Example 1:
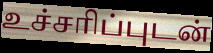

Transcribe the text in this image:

உச்சரிப்புடன்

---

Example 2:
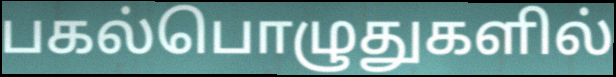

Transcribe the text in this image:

பகல்பொழுதுகளில்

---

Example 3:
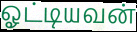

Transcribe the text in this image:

ஓட்டியவன்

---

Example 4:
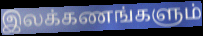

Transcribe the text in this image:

இலக்கணங்களும்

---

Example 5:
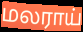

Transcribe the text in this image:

மலராய்